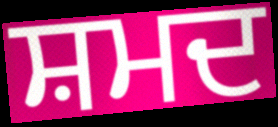
ਸ਼ਮਦ